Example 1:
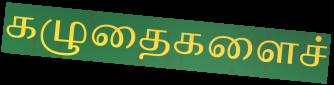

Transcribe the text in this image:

கழுதைகளைச்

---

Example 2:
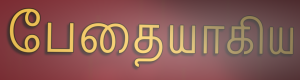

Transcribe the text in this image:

பேதையாகிய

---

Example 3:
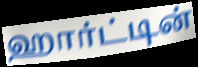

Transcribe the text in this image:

ஹார்ட்டின்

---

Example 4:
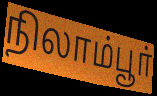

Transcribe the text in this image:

நிலாம்பூர்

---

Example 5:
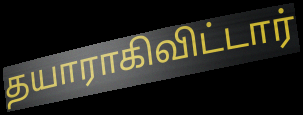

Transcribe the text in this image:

தயாராகிவிட்டார்